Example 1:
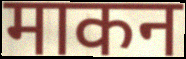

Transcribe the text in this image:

माकन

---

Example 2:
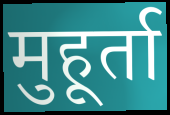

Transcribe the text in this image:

मुहूर्ता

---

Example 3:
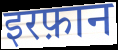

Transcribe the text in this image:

इरफ़ान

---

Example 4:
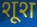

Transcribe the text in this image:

शूश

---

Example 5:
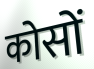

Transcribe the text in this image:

कोसों